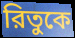
রিতুকে